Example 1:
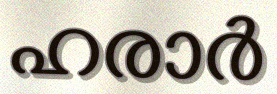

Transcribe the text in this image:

ഹരാർ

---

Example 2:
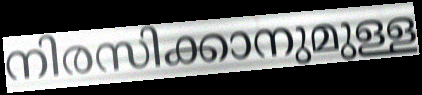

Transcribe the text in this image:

നിരസിക്കാനുമുള്ള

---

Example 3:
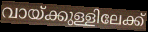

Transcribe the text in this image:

വായ്ക്കുള്ളിലേക്ക്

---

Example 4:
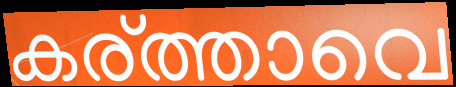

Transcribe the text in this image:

കര്ത്താവെ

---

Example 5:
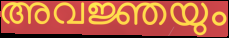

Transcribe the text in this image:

അവജ്ഞയും